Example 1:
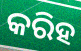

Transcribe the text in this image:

କରିହ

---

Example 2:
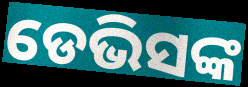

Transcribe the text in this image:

ଡେଭିସଙ୍କ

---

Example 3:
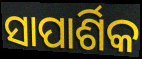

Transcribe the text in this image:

ସାପାର୍ଶିକ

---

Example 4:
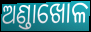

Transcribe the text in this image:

ଅଣ୍ଡାଖୋଳ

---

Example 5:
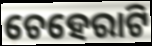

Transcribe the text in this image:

ଚେହେରାଟି